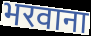
भरवाना